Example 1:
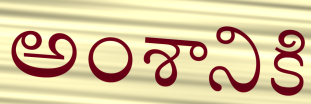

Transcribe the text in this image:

అంశానికి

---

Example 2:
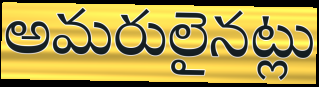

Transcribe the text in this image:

అమరులైనట్లు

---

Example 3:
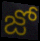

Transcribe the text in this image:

జో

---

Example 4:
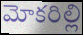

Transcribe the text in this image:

మోకరిల్లి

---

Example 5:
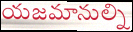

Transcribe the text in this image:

యజమానుల్ని